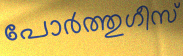
പോർത്തുഗീസ്